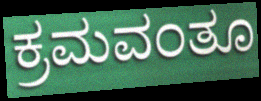
ಕ್ರಮವಂತೂ